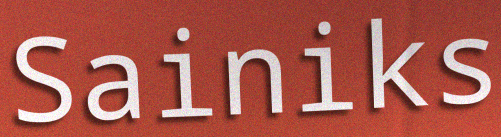
Sainiks